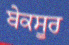
ਬੇਕਸੂਰ